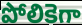
పోలికెగా